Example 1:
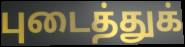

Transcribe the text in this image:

புடைத்துக்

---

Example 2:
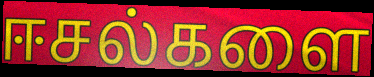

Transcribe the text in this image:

ஈசல்களை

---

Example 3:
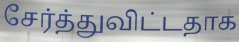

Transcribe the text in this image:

சேர்த்துவிட்டதாக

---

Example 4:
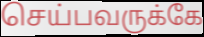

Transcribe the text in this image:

செய்பவருக்கே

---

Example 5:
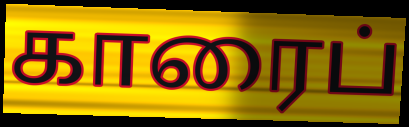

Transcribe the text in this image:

காரைப்